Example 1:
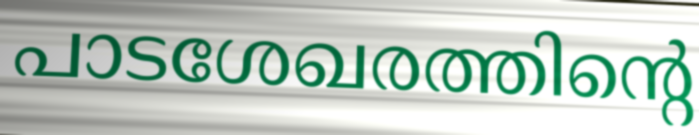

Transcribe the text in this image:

പാടശേഖരത്തിന്റെ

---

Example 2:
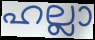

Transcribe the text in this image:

ഹല്ലാ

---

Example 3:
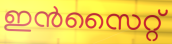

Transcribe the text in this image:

ഇൻസൈറ്റ്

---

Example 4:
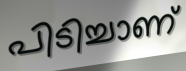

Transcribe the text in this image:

പിടിച്ചാണ്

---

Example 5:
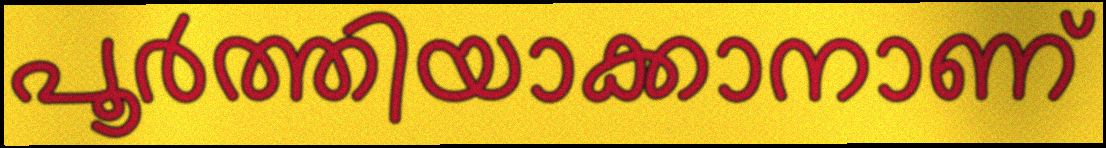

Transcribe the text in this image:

പൂർത്തിയാക്കാനാണ്